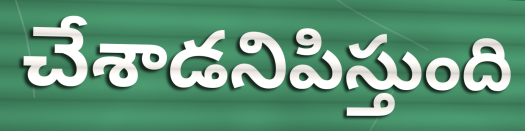
చేశాడనిపిస్తుంది